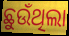
ଛୁଉଁଥିଲା